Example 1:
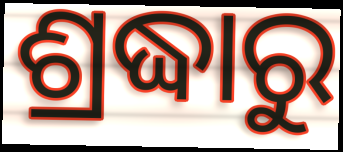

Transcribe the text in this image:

ଶ୍ରଦ୍ଧାରୁ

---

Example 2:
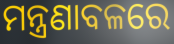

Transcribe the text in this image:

ମନ୍ତ୍ରଣାବଳରେ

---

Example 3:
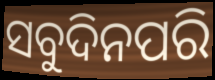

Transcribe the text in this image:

ସବୁଦିନପରି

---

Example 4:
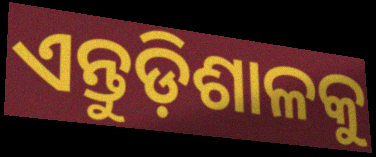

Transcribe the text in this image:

ଏନ୍ତୁଡ଼ିଶାଳକୁ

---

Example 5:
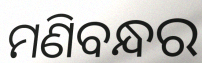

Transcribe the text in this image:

ମଣିବନ୍ଧର